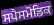
ਸਪੈਸਮੋਡਿਕ